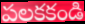
పలకకండి